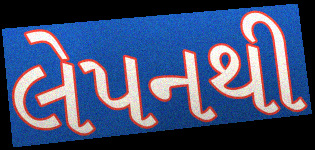
લેપનથી